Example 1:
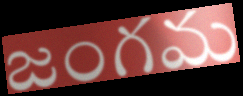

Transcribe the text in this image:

జంగమ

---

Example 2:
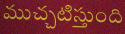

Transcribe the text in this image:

ముచ్చటిస్తుంది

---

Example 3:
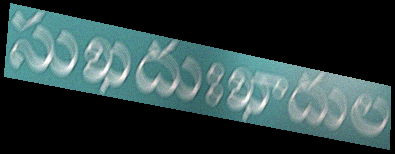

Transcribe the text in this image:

సుఖదుఃఖాదుల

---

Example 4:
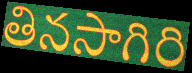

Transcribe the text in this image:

తినసాగిరి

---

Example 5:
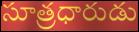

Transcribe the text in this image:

సూత్రధారుడు